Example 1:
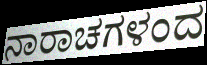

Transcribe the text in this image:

ನಾರಾಚಗಳಂದ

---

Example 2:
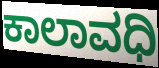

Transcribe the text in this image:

ಕಾಲಾವಧಿ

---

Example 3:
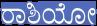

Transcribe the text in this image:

ರಾಶಿಯೋ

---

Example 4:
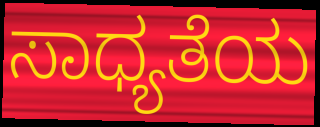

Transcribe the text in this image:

ಸಾಧ್ಯತೆಯ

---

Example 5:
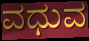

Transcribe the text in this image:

ವಧುವ